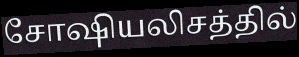
சோஷியலிசத்தில்